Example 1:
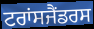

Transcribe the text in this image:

ਟਰਾਂਸਜੈਂਡਰਸ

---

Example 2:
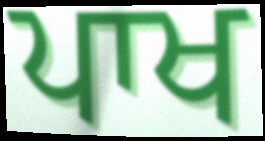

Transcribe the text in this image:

ਪਾਖ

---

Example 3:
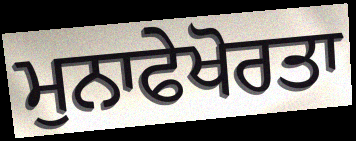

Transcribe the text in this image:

ਮੁਨਾਫੇਖੋਰਤਾ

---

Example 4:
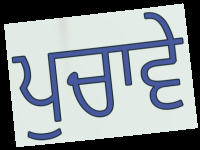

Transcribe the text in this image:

ਪੁਚਾਵੇ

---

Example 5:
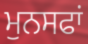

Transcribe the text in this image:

ਮੁਨਸਫਾਂ